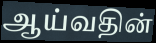
ஆய்வதின்